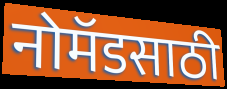
नोमॅडसाठी